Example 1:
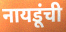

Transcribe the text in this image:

नायडूंची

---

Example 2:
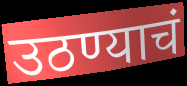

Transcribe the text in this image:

उठण्याचं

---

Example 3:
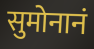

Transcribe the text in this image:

सुमोनानं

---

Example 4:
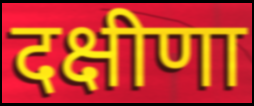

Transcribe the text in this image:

दक्षीणा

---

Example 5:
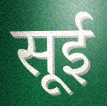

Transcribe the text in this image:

सूई